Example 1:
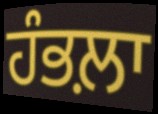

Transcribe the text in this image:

ਹੰਭਲ਼ਾ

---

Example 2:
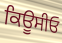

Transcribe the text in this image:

ਕਿਊਸੀਓ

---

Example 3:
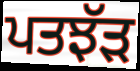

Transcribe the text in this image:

ਪਤਝੱੜ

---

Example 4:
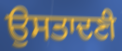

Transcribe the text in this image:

ਉਸਤਾਦਣੀ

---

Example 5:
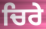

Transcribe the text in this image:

ਚਿਰੇ